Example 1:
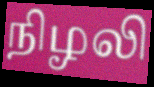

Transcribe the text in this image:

நிழலி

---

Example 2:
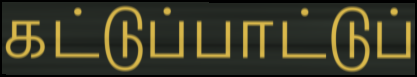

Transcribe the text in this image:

கட்டுப்பாட்டுப்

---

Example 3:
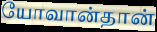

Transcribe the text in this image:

யோவான்தான்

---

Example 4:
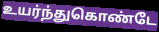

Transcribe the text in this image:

உயர்ந்துகொண்டே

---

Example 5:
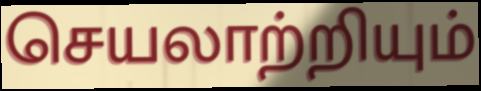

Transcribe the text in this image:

செயலாற்றியும்